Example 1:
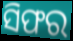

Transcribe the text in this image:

ସିଫର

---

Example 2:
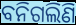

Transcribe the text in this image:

ବନିଗଲିଣି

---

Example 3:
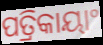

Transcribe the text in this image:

ପତ୍ରିକାୟାଂ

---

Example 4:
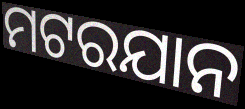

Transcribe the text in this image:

ମଟରଯାନ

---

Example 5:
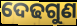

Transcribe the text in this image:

ଦେଢଗୁଣ